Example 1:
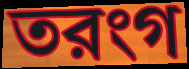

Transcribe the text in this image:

তরংগ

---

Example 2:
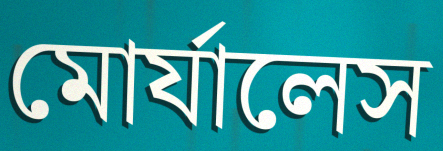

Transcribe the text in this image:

মোর্যালেস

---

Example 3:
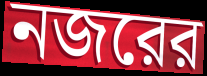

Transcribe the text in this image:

নজরের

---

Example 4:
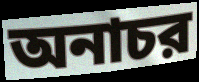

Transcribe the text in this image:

অনাচর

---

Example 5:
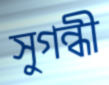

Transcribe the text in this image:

সুগন্ধী